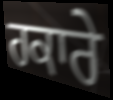
ਹਕਾਰੇ